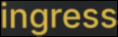
ingress